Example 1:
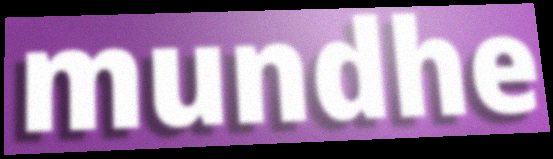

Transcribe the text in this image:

mundhe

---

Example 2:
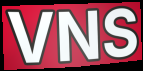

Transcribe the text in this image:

VNS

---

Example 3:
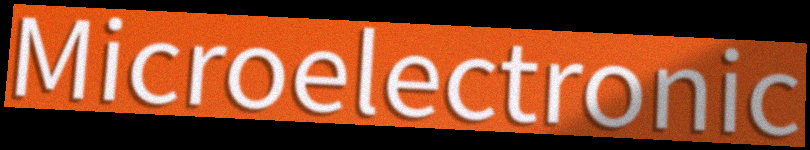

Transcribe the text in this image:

Microelectronic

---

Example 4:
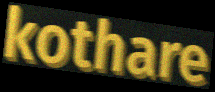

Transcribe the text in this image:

kothare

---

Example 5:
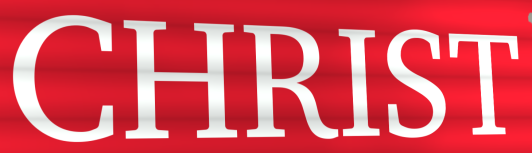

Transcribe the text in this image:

CHRIST